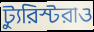
ট্যুরিস্টরাও